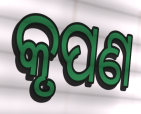
କୃପଣ